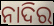
ନାଦିର